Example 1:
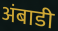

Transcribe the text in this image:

अंबाडी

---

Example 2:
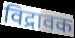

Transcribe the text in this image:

विद्रावक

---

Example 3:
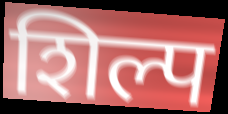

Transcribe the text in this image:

शिल्प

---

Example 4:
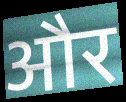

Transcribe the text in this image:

और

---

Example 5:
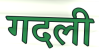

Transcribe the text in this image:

गदली